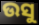
ଉସୁ